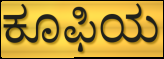
ಕೂಫಿಯ